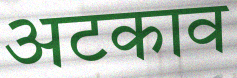
अटकाव